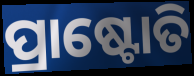
ପ୍ରାଷ୍ଟୋତି